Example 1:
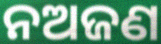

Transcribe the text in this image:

ନଅଜଣ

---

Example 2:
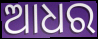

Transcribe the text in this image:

ଆଧର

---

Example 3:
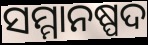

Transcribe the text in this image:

ସମ୍ମାନଷ୍ପଦ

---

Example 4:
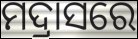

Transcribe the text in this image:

ମଦ୍ରାସରେ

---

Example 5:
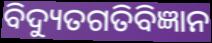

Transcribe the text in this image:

ବିଦ୍ୟୁତଗତିବିଜ୍ଞାନ